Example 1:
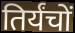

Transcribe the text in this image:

तिर्यंचों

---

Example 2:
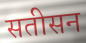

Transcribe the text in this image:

सतीसन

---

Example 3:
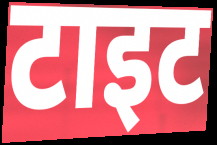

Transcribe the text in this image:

टाइट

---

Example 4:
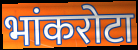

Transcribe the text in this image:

भांकरोटा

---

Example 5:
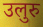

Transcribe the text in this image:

उलुरु